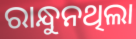
ରାନ୍ଧୁନଥିଲା